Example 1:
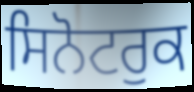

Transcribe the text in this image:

ਸਿਨੋਟਰੁਕ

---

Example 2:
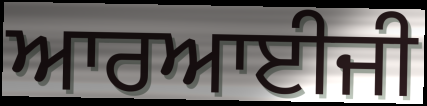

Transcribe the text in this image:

ਆਰਆਈਜੀ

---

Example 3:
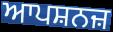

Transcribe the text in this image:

ਆਪਸ਼ਨਜ਼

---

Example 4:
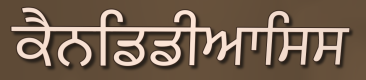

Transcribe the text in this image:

ਕੈਨਡਿਡੀਆਸਿਸ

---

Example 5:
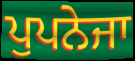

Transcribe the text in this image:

ਪੁਪਨੇਜਾ